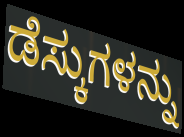
ಡೆಸ್ಕುಗಳನ್ನು